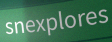
snexplores